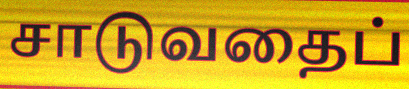
சாடுவதைப்